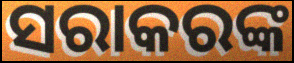
ସରାକରଙ୍କ